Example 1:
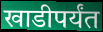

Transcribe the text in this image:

खाडीपर्यंत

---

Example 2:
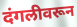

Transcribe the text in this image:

दंगलीवरून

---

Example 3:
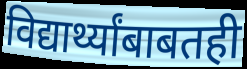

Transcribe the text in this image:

विद्यार्थ्यांबाबतही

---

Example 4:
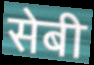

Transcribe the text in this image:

सेबी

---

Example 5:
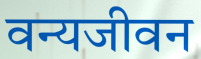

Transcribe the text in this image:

वन्यजीवन